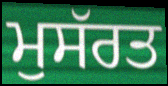
ਮੁਸੱਰਤ